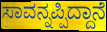
ಸಾವನ್ನಪ್ಪಿದ್ದಾನೆ